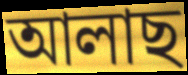
আলাছ